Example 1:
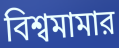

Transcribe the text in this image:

বিশ্বমামার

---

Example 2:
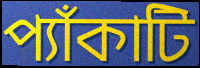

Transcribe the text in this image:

প্যাঁকাটি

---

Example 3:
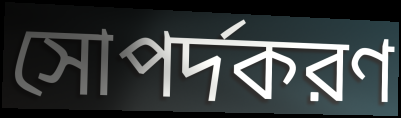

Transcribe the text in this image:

সোপর্দকরণ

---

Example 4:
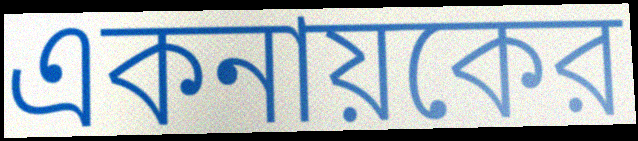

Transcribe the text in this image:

একনায়কের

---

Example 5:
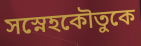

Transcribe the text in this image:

সস্নেহকৌতুকে